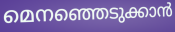
മെനഞ്ഞെടുക്കാൻ